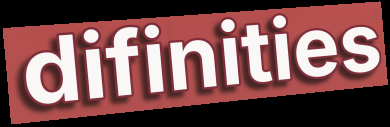
difinities